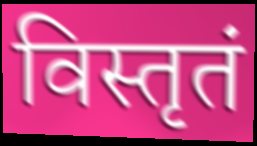
विस्तृतं